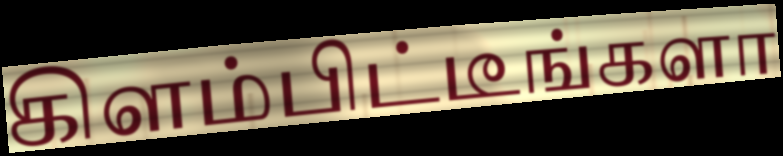
கிளம்பிட்டீங்களா